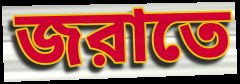
জরাতে